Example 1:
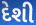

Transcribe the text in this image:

દેશી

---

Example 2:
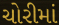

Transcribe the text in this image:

ચોરીમાં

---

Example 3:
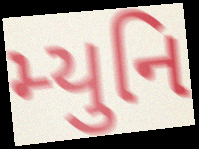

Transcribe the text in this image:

મ્યુનિ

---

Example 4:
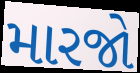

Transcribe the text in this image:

મારજો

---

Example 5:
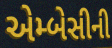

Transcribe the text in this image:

એમ્બેસીની